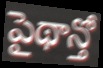
పైథాన్తో